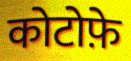
कोटोफ़े